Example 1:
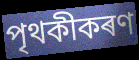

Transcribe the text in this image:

পৃথকীকৰণ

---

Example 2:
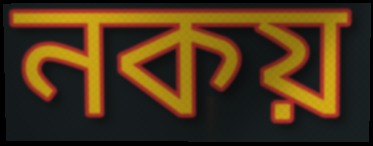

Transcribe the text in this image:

নকয়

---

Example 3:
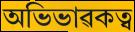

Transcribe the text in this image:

অভিভাৱকত্ব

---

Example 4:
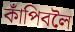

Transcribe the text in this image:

কাঁপিবলৈ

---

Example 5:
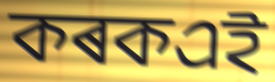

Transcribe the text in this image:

কৰকএই